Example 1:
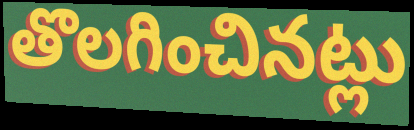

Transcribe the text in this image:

తొలగించినట్లు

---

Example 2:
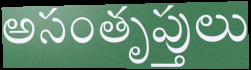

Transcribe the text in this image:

అసంతృప్తులు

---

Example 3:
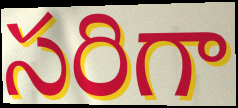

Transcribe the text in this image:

సరిగా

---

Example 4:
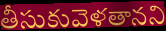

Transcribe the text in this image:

తీసుకువెళతానని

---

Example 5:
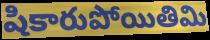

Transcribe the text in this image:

షికారుపోయితిమి